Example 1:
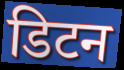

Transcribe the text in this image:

डिटन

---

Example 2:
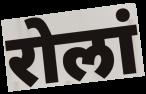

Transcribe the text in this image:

रोलां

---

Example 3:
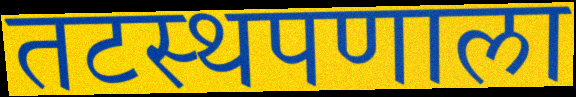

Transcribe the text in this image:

तटस्थपणाला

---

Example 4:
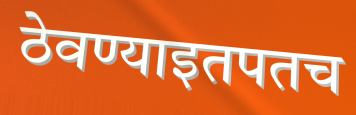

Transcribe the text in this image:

ठेवण्याइतपतच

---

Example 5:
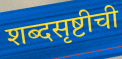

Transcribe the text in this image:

शब्दसृष्टीची